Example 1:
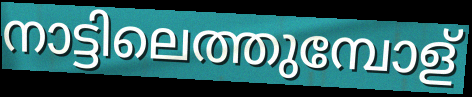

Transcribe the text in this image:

നാട്ടിലെത്തുമ്പോള്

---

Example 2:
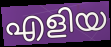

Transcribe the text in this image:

എളിയ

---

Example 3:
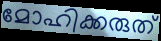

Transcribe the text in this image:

മോഹിക്കരുത്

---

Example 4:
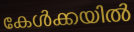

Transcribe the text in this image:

കേൾക്കയിൽ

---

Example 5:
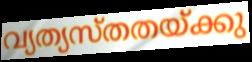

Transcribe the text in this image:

വ്യത്യസ്തതയ്ക്കു